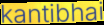
kantibhai